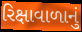
રિક્ષાવાળાનું